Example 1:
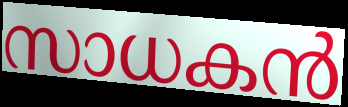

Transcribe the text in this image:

സാധകൻ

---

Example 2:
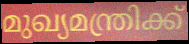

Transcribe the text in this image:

മുഖ്യമന്ത്രിക്ക്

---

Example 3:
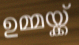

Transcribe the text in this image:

ഉമ്മയ്ക്ക്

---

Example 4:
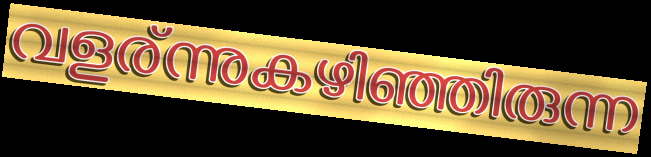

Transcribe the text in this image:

വളര്ന്നുകഴിഞ്ഞിരുന്ന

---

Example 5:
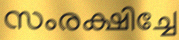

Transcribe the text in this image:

സംരക്ഷിച്ചേ